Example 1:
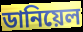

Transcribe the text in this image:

ডানিয়েল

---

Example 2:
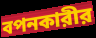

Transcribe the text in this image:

বপনকারীর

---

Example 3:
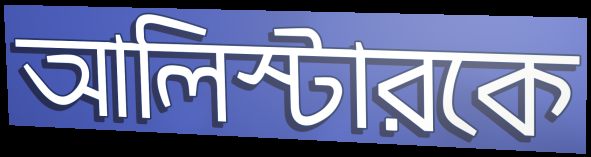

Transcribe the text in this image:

আলিস্টারকে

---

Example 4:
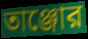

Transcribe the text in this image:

তাঞ্জোর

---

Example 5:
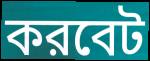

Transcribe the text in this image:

করবেট